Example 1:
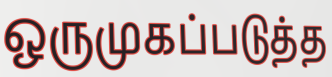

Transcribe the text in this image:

ஒருமுகப்படுத்த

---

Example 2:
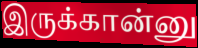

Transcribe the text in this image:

இருக்கான்னு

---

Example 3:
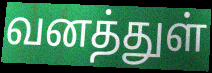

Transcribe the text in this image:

வனத்துள்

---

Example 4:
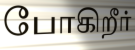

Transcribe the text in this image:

போகிறீர்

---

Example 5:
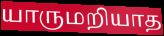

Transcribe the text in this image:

யாருமறியாத